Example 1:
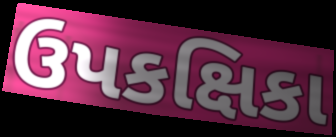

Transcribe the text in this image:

ઉપકક્ષિકા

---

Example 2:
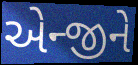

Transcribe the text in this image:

એન્જીને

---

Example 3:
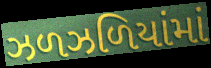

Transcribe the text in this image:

ઝળઝળિયાંમાં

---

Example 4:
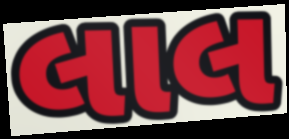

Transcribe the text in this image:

લાલ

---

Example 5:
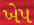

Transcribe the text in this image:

ખેપ